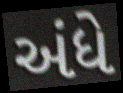
અંધે